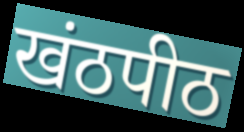
खंठपीठ